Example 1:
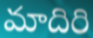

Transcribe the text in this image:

మాదిరి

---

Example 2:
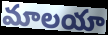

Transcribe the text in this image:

మాలయా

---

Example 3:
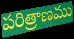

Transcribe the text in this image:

పరిత్రాణము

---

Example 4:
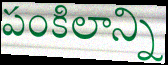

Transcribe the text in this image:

పంకిలాన్ని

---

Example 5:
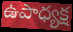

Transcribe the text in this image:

ఉపాధ్యక్ష